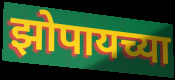
झोपायच्या